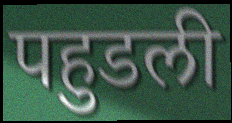
पहुडली